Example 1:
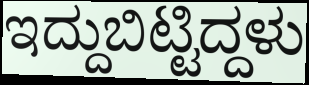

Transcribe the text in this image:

ಇದ್ದುಬಿಟ್ಟಿದ್ದಳು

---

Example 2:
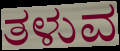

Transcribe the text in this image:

ತಳುವ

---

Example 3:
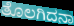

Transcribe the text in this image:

ತೊಲಗಿದನಾ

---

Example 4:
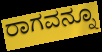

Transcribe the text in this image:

ರಾಗವನ್ನೂ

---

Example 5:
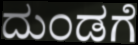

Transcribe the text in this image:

ದುಂಡಗೆ